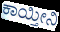
ಕಾಯ್ತೀನಿ